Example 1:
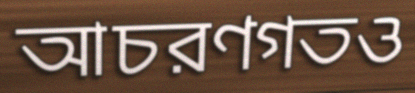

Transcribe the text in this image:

আচরণগতও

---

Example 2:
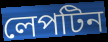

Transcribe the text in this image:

লেপটিন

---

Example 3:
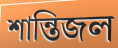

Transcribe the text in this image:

শান্তিজল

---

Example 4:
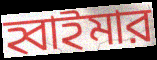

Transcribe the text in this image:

হ্বাইমার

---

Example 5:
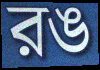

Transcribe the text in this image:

রঙ